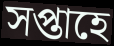
সপ্তাহে